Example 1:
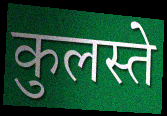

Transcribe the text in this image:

कुलस्ते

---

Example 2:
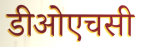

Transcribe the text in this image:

डीओएचसी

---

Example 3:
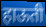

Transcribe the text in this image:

हाऊती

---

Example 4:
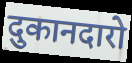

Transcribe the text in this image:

दुकानदारो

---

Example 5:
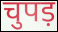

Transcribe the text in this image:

चुपड़